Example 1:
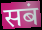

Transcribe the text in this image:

सबं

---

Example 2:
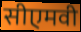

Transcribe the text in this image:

सीएमवी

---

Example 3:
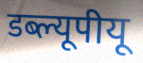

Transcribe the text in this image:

डब्ल्यूपीयू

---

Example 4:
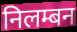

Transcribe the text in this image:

निलम्‍बन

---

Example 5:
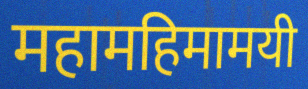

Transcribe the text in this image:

महामहिमामयी